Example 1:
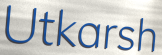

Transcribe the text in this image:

Utkarsh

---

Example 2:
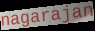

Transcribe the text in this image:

nagarajan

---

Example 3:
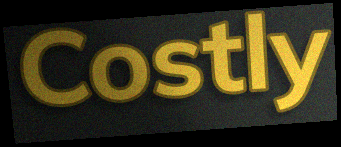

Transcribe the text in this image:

Costly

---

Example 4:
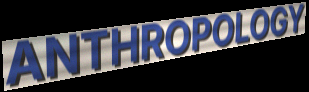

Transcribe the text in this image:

ANTHROPOLOGY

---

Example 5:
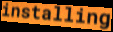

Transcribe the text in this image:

installing